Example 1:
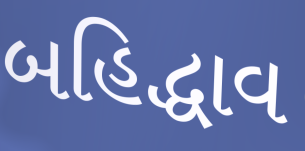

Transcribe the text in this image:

બહિદ્ધાવ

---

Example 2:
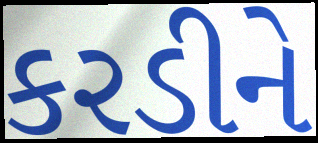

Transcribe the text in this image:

કરડીને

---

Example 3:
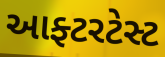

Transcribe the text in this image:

આફ્ટરટેસ્ટ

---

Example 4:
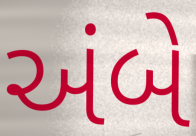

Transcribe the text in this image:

અંબે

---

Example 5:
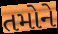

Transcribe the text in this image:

તમોને